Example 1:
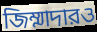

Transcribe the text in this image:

জিম্মাদারও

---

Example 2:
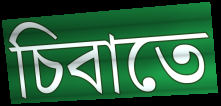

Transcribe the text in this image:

চিবাতে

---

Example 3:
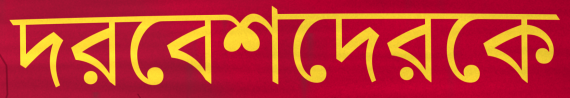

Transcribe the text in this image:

দরবেশদেরকে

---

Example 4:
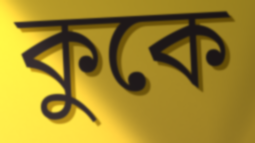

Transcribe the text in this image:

কুকে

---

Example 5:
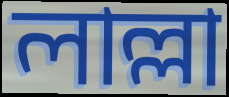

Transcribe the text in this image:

লাল্লা